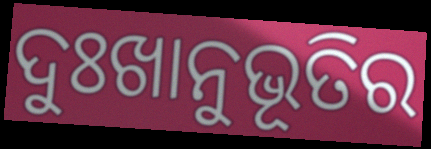
ଦୁଃଖାନୁଭୂତିର